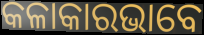
କଳାକାରଭାବେ